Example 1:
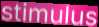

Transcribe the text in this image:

stimulus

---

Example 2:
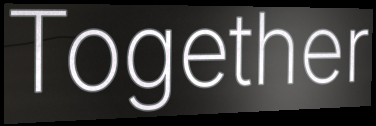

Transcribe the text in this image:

Together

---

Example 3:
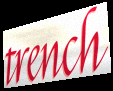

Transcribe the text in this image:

trench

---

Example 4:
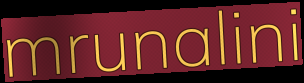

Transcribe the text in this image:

mrunalini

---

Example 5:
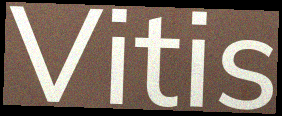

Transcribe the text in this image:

Vitis